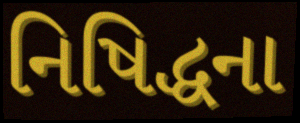
નિષિદ્ધના